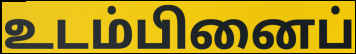
உடம்பினைப்